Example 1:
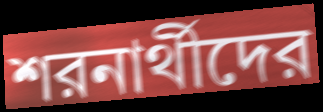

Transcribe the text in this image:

শরনার্থীদের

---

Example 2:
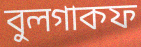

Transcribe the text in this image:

বুলগাকফ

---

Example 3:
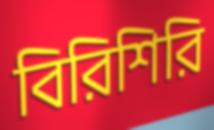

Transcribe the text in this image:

বিরিশিরি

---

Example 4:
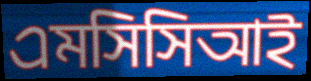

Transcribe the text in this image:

এমসিসিআই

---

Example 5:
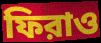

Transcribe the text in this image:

ফিরাও